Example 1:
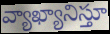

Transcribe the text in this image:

వ్యాఖ్యానిస్తూ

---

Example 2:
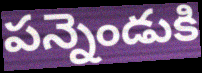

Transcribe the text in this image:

పన్నెండుకి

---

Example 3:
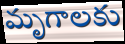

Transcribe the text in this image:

మృగాలకు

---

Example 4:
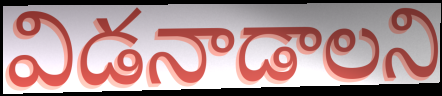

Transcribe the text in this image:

విడనాడాలని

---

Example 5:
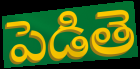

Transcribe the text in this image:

పెడితె